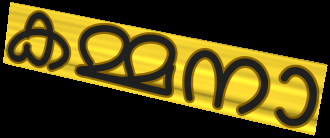
കമ്മനാ